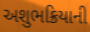
અશુભક્રિયાની